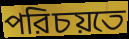
পরিচয়তে